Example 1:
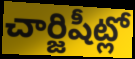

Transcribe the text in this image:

చార్జిషీట్లో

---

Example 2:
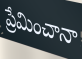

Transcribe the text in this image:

ప్రేమించానా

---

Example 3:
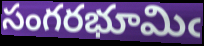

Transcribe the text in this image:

సంగరభూమిఁ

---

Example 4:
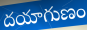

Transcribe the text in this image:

దయాగుణం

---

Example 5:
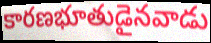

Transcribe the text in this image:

కారణభూతుడైనవాడు